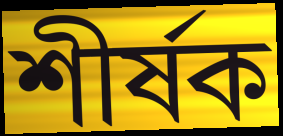
শীৰ্ষক